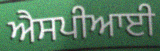
ਐਸਪੀਆਈ